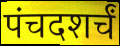
पंचदशर्चं